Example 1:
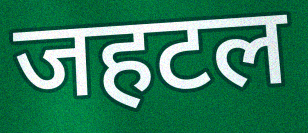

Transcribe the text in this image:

जहटल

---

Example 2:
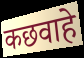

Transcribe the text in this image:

कछवाहे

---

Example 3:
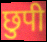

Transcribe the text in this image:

छुपी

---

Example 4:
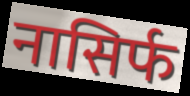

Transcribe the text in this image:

नासिर्फ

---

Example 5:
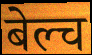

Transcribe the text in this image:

बेल्च